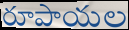
రూపాయల